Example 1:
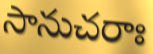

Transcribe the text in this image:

సానుచరాః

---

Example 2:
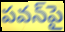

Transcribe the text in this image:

పవన్‌పై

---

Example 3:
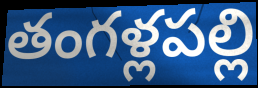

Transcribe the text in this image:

తంగళ్లపల్లి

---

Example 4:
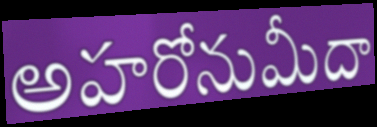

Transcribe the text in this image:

అహరోనుమీదా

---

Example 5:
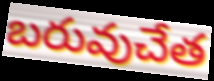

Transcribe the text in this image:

బరువుచేత